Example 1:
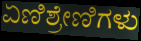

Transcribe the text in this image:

ಏಣಿಶ್ರೇಣಿಗಳು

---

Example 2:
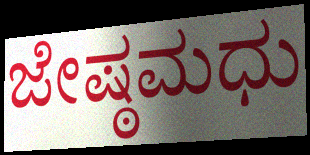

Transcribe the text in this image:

ಜೇಷ್ಠಮಧು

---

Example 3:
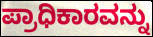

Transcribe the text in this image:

ಪ್ರಾಧಿಕಾರವನ್ನು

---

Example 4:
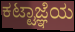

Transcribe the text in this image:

ಕಟ್ಟಾಜ್ಞೆಯ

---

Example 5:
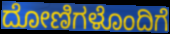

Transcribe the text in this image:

ದೋಣಿಗಳೊಂದಿಗೆ